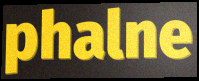
phalne